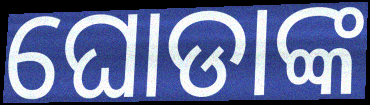
ଘୋଡାଙ୍କ